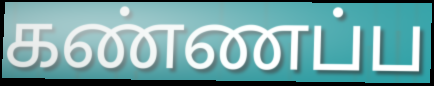
கண்ணப்ப